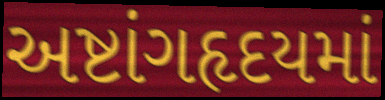
અષ્ટાંગહૃદયમાં